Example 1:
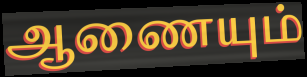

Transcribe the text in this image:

ஆணையும்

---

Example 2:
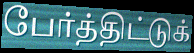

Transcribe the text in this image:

பேர்த்திட்டுக்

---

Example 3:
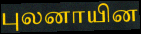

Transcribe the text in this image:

புலனாயின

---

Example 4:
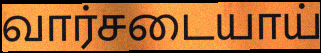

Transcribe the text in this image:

வார்சடையாய்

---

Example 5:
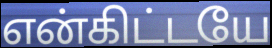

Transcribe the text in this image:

என்கிட்டயே